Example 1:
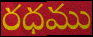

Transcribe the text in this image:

రధము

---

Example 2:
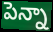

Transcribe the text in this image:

పెన్నా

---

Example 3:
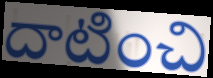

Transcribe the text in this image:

దాటించి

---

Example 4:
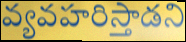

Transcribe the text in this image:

వ్యవహరిస్తాడని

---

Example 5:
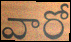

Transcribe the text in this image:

వారో